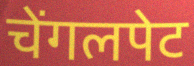
चेंगलपेट